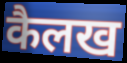
कैलख